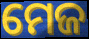
ମେଜ